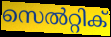
സെൽറ്റിക്